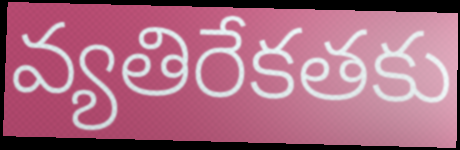
వ్యతిరేకతకు